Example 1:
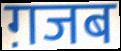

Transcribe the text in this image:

ग़जब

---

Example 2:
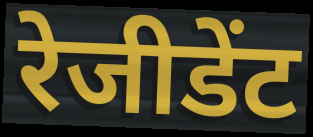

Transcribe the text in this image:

रेजीडेंट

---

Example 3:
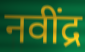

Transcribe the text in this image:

नवींद्र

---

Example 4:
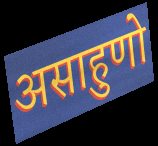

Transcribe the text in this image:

असाहुणो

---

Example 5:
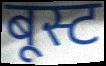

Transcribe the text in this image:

बूस्ट